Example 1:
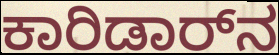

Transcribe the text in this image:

ಕಾರಿಡಾರ್‌ನ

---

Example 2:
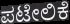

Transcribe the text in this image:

ಪಟೇಲಿಕೆ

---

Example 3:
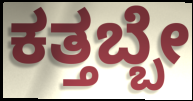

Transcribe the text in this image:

ಕತ್ತಬ್ಬೇ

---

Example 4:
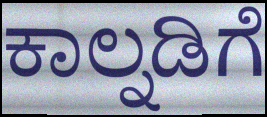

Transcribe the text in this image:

ಕಾಲ್ನಡಿಗೆ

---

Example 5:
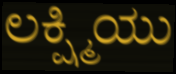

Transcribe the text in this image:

ಲಕ್ಷ್ಮಿಯು